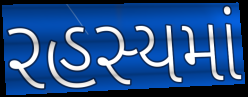
રહસ્યમાં